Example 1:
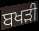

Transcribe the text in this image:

ਬਖੜੀ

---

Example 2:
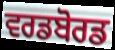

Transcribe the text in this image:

ਵਰਡਬੋਰਡ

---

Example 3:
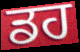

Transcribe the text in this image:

ਡਹ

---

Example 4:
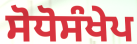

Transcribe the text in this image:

ਸੋਧੋਸੰਖੇਪ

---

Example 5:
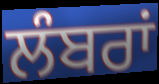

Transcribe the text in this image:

ਲੰਬਰਾਂ